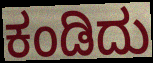
ಕಂಡಿದು